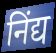
निंद्य